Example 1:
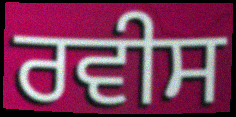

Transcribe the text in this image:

ਰਵੀਸ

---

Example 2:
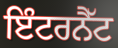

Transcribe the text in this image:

ਇੰਟਰਨੈੱਟ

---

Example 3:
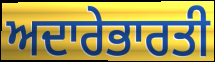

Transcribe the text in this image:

ਅਦਾਰੇਭਾਰਤੀ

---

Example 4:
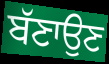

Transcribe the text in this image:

ਬੱਣਾਉਣ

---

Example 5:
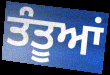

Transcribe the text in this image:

ਤੰਤੂਆਂ